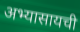
अभ्यासायची